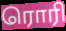
ரொரி